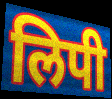
लिपी